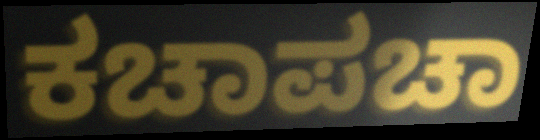
ಕಚಾಪಚಾ